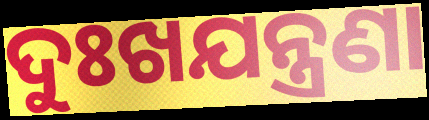
ଦୁଃଖଯନ୍ତ୍ରଣା